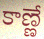
కాణ్ణే